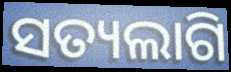
ସତ୍ୟଲାଗି